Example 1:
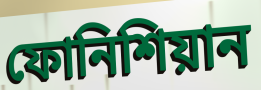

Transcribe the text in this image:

ফোনিশিয়ান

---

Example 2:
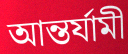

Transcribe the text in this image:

আন্তর্যামী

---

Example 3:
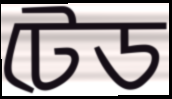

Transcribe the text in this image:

টেড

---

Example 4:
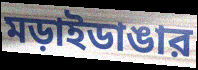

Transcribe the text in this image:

মড়াইডাঙার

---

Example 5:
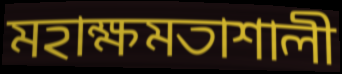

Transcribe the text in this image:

মহাক্ষমতাশালী